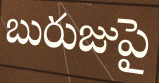
బురుజుపై